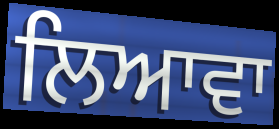
ਲਿਆਵਾ